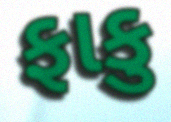
ફાકુ